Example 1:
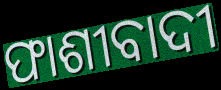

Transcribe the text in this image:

ଫାଶୀବାଦୀ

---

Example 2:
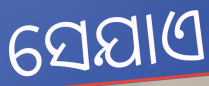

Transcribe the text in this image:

ସେଯାଏ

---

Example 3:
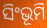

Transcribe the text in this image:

ସିଂଭୂମି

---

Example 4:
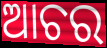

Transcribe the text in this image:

ଆଚର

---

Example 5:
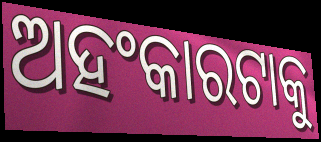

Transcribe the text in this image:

ଅହଂକାରଟାକୁ